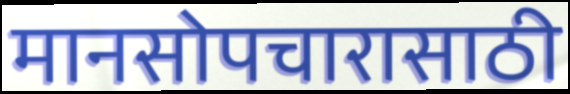
मानसोपचारासाठी